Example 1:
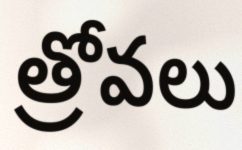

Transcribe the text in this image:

త్రోవలు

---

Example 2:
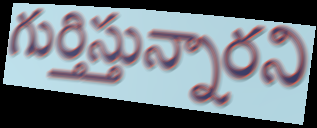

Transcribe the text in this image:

గుర్తిస్తున్నారని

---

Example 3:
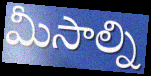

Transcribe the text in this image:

మీసాల్ని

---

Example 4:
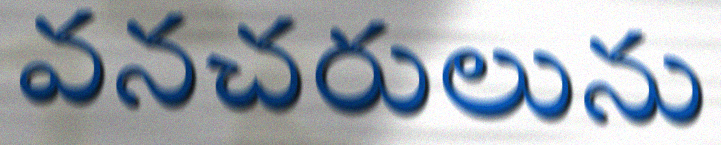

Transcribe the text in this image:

వనచరులును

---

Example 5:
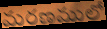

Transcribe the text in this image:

మరణములో